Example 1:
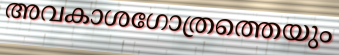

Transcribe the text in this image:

അവകാശഗോത്രത്തെയും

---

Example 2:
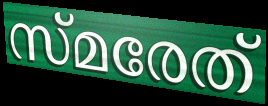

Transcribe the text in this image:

സ്മരേത്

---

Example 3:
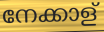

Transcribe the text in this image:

നേക്കാള്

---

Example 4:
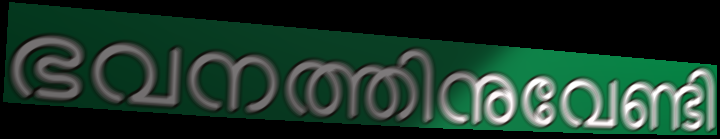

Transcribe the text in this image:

ഭവനത്തിനുവേണ്ടി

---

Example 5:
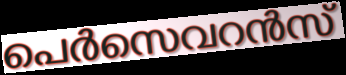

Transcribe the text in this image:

പെർസെവറൻസ്